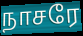
நாசரே